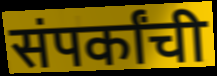
संपर्कांची